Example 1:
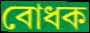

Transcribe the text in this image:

বোধক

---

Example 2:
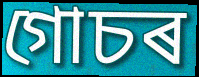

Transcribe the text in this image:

গোচৰ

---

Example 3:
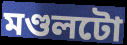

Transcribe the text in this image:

মণ্ডলটো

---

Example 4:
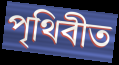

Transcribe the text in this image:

পৃথিবীত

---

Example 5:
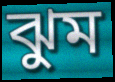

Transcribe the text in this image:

ঝুম